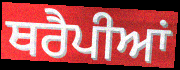
ਥਰੈਪੀਆਂ